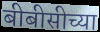
बीबीसीच्या